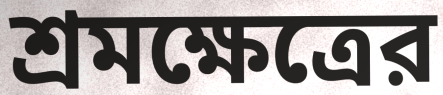
শ্রমক্ষেত্রের